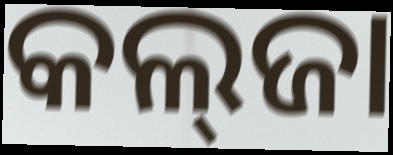
କଲ୍‌ଜା